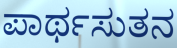
ಪಾರ್ಥಸುತನ